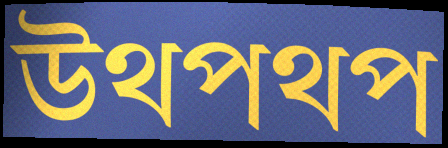
উথপথপ